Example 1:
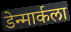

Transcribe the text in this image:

डेन्मार्कला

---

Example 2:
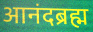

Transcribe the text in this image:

आनंदब्रह्म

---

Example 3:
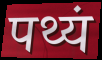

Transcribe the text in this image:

पथ्यं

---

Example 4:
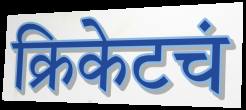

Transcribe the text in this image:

क्रिकेटचं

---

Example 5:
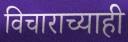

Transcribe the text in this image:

विचाराच्याही